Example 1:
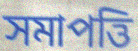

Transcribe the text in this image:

সমাপত্তি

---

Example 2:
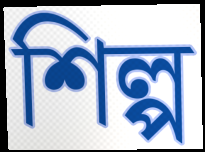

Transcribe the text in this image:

শিল্প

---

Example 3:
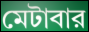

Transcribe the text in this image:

মেটাবার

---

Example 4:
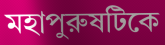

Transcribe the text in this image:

মহাপুরুষটিকে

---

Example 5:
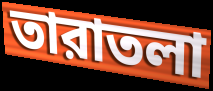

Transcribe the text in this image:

তারাতলা